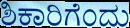
ಶಿಕಾರಿಗೆಂದು